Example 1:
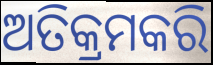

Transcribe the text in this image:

ଅତିକ୍ରମକରି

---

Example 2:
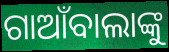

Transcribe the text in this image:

ଗାଆଁବାଲାଙ୍କୁ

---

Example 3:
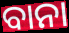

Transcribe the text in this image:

ବାନା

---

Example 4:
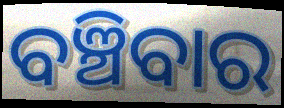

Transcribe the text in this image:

ବଞ୍ଚିବାର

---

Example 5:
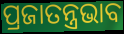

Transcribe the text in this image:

ପ୍ରଜାତନ୍ତ୍ରଭାବ